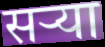
सऱ्या